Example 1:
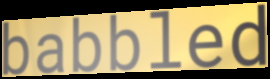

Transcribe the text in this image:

babbled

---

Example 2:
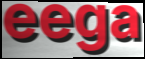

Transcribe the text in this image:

eega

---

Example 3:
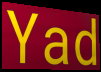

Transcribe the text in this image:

Yad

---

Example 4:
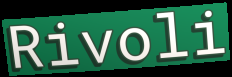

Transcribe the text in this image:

Rivoli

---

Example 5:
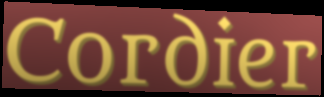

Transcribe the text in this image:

Cordier